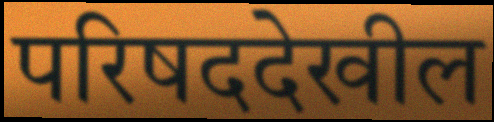
परिषददेखील